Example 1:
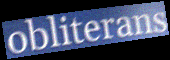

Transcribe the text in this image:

obliterans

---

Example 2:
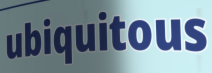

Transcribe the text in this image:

ubiquitous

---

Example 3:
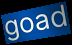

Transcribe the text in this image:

goad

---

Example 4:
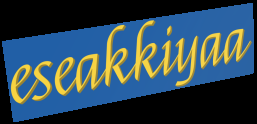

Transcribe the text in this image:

eseakkiyaa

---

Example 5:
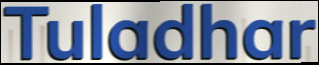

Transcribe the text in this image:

Tuladhar